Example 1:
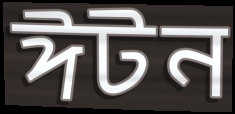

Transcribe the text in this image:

ঈটন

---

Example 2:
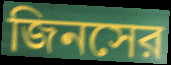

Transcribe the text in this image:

জিনসের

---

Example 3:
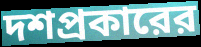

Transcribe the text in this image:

দশপ্রকারের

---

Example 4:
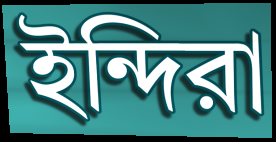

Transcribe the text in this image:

ইন্দিরা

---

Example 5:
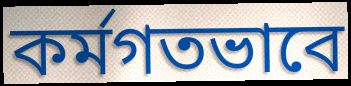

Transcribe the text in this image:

কর্মগতভাবে